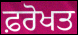
ਫ਼ਰੋਖਤ